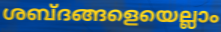
ശബ്ദങ്ങളെയെല്ലാം